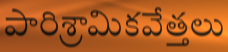
పారిశ్రామికవేత్తలు